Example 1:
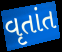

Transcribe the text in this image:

વૃતાંત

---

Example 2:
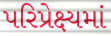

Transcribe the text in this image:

પરિપ્રેક્ષ્યમાં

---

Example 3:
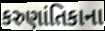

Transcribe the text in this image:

કરુણાંતિકાના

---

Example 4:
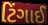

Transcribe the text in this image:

ટિંગાઈ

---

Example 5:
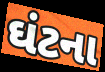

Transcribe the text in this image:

ઘંટના